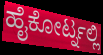
ಹೈಕೋರ್ಟ್ನಲ್ಲಿ